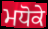
ਮਧੋਕੇ